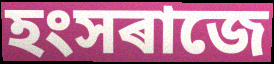
হংসৰাজে